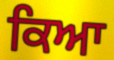
ਕਿਆ